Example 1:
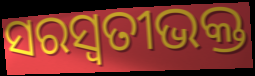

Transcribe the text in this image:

ସରସ୍ୱତୀଭକ୍ତ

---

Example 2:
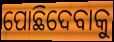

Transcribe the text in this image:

ପୋଛିଦେବାକୁ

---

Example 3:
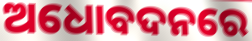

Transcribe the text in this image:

ଅଧୋବଦନରେ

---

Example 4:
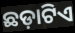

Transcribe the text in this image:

ଛଡ଼ାଟିଏ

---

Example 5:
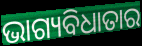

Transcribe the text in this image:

ଭାଗ୍ୟବିଧାତାର